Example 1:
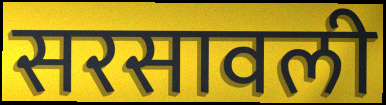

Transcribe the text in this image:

सरसावली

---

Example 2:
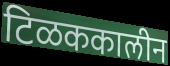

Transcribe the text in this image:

टिळककालीन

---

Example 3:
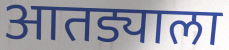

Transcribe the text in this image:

आतड्याला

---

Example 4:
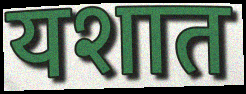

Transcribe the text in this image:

यशात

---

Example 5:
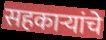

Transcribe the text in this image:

सहकाऱ्यांचे